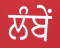
ਲੰਬੇਂ